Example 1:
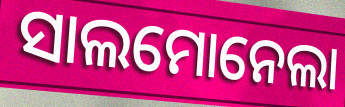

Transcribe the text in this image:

ସାଲମୋନେଲା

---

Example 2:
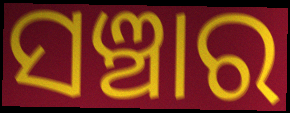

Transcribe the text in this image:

ସଞ୍ଚାର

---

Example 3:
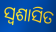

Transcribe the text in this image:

ସ୍ୱଶାସିତ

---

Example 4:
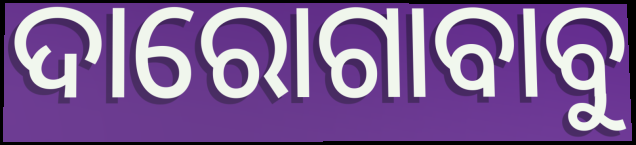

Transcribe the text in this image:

ଦାରୋଗାବାବୁ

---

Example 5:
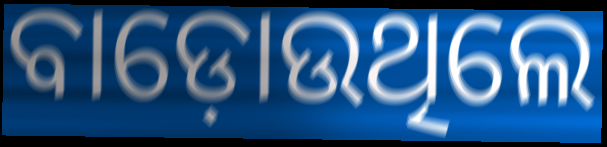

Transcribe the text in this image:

ବାଡ଼ୋଉଥିଲେ